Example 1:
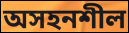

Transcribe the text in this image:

অসহনশীল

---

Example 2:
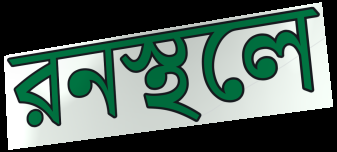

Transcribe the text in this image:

রনস্থলে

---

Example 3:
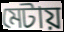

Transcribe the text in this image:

মেটায়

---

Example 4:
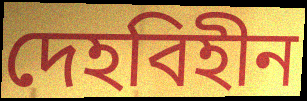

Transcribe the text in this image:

দেহবিহীন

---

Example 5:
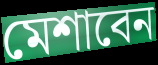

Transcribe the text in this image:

মেশাবেন